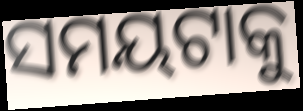
ସମୟଟାକୁ